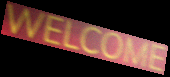
WELCOME